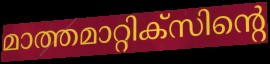
മാത്തമാറ്റിക്സിന്റെ